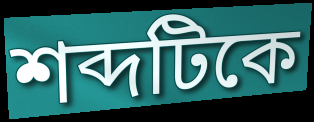
শব্দটিকে